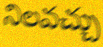
నిలవచ్చు